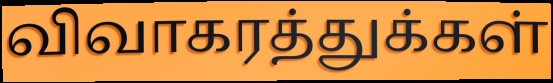
விவாகரத்துக்கள்